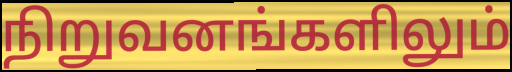
நிறுவனங்களிலும்